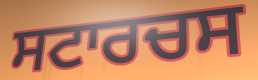
ਸਟਾਰਚਸ